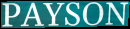
PAYSON